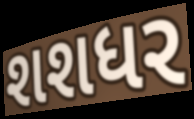
શશધર